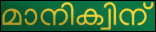
മാനിക്വിന്